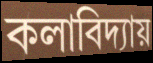
কলাবিদ্যায়